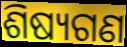
ଶିଷ୍ୟଗଣ